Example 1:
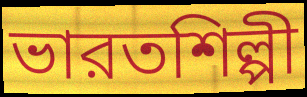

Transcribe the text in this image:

ভারতশিল্পী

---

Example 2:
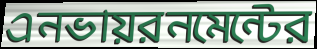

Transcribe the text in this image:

এনভায়রনমেন্টের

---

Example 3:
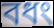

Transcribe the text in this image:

বধং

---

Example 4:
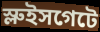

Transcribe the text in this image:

স্লুইসগেটে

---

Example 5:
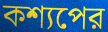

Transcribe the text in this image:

কশ্যপের